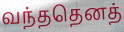
வந்ததெனத்